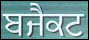
ਬਜੈਕਟ